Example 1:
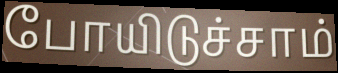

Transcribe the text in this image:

போயிடுச்சாம்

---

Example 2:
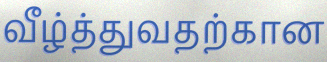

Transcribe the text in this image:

வீழ்த்துவதற்கான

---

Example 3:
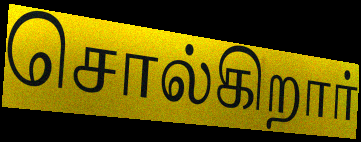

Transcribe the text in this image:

சொல்கிறார்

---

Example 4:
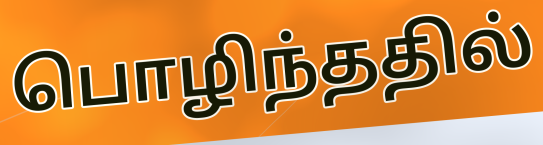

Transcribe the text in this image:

பொழிந்ததில்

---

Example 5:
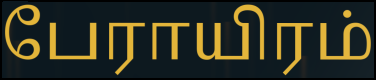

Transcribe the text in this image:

பேராயிரம்